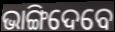
ଭାଙ୍ଗିଦେବେ